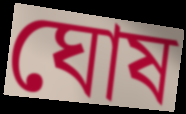
ঘোষ